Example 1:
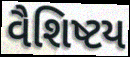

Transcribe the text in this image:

વૈશિષ્ટય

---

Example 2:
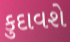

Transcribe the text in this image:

કુદાવશે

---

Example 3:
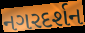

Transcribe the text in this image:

નગરદર્શન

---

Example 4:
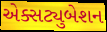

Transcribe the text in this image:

એક્સટ્યુબેશન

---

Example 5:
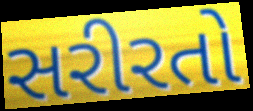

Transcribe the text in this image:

સરીરતો